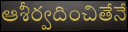
ఆశీర్వదించితేనే